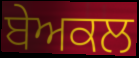
ਬੇਅਕਲ